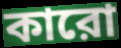
কারো